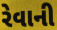
રેવાની